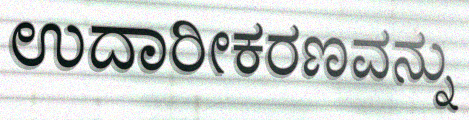
ಉದಾರೀಕರಣವನ್ನು